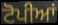
ਟੋਪੀਆਂ